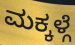
ಮಕ್ಕಳ್ಗೆ